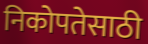
निकोपतेसाठी